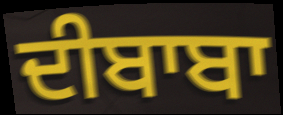
ਦੀਬਾਬਾ